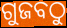
ଗୁଜବଠୁ